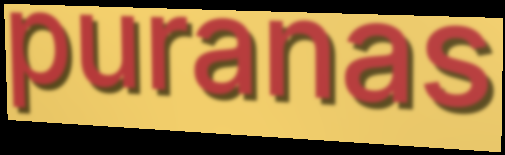
puranas